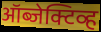
ऑब्जेक्टिव्ह